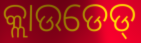
କ୍ଲାଉଡେଡ୍